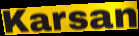
Karsan